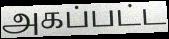
அகப்பட்ட